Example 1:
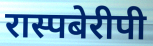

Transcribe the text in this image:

रास्पबेरीपी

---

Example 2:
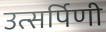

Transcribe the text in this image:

उत्सर्पिणी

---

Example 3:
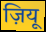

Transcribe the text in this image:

ज़ियू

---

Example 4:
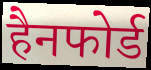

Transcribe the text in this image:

हैनफोर्ड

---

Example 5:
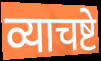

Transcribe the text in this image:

व्याचष्टे